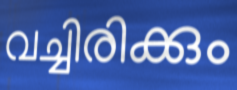
വച്ചിരിക്കും